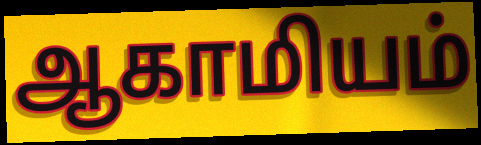
ஆகாமியம்